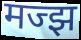
मज्झ